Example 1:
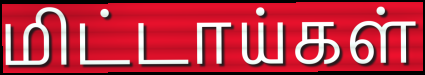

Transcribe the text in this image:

மிட்டாய்கள்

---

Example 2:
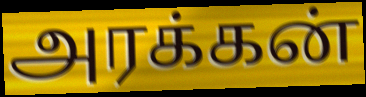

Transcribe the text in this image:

அரக்கன்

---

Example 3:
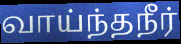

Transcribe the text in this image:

வாய்ந்தநீர்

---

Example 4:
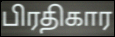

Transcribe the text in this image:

பிரதிகார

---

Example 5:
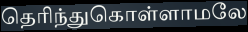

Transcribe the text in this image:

தெரிந்துகொள்ளாமலே